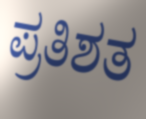
ಪ್ರತಿಶತ